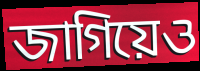
জাগিয়েও